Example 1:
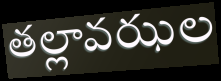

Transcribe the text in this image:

తల్లావఝల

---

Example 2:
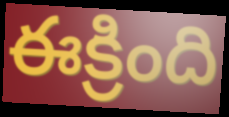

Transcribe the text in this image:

ఈక్రింది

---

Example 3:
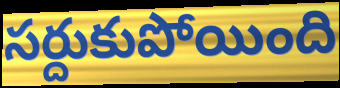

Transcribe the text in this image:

సర్దుకుపోయింది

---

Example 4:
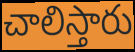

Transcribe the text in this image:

చాలిస్తారు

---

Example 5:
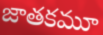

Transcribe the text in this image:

జాతకమూ